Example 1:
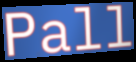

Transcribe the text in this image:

Pall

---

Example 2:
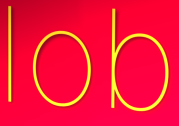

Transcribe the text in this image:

Iob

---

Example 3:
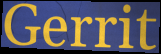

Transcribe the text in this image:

Gerrit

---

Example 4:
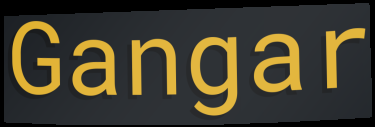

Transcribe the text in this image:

Gangar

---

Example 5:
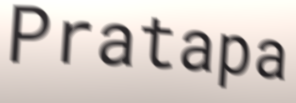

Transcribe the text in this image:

Pratapa